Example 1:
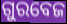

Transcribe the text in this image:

ଗୁରବେଜ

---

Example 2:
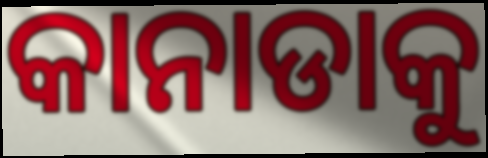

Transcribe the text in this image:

କାନାଡାକୁ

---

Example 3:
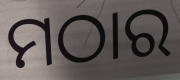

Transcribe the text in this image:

ମଠାର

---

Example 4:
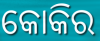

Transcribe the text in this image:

କୋକିର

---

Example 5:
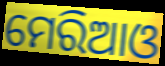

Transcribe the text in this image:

ମେରିଆଓ